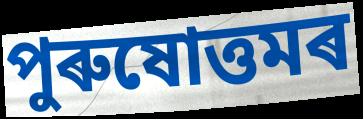
পুৰুষোত্তমৰ